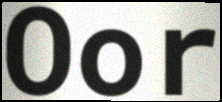
Oor